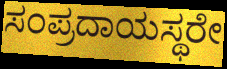
ಸಂಪ್ರದಾಯಸ್ಥರೇ